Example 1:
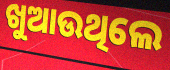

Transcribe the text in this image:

ଖୁଆଉଥିଲେ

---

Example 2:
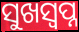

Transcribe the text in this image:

ସୁଖସ୍ୱପ୍ନ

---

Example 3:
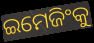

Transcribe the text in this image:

ଇମେଜିଂକୁ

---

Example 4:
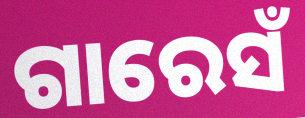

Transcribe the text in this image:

ଗାରେସଁ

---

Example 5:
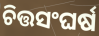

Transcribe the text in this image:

ଚିତ୍ତସଂଘର୍ଷ